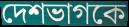
দেশভাগকে